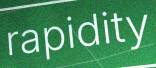
rapidity